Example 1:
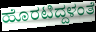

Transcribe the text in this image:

ಹೊರಟಿದ್ದಳಂತೆ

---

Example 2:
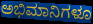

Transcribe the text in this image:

ಅಭಿಮಾನಿಗಳೂ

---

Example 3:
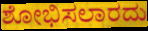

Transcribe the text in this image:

ಶೋಭಿಸಲಾರದು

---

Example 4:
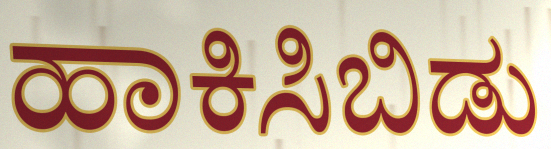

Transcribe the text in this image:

ಹಾಕಿಸಿಬಿಡು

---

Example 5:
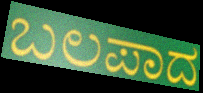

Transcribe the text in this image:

ಬಲಪಾದ